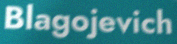
Blagojevich